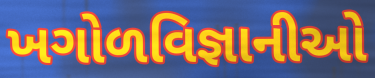
ખગોળવિજ્ઞાનીઓ